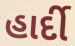
હાર્દી